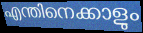
എന്തിനെക്കാളും